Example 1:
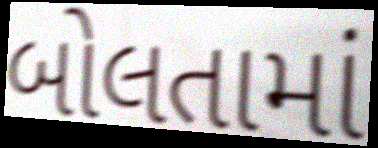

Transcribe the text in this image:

બોલતામાં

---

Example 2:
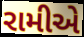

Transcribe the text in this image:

રામીએ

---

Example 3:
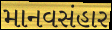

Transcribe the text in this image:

માનવસંહાર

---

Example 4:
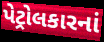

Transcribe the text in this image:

પેટ્રોલકારનાં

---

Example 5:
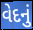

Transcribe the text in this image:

વેદનું